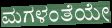
ಮಗಳಂತೆಯೇ